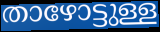
താഴോട്ടുള്ള